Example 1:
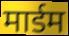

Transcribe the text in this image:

मार्डम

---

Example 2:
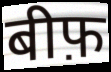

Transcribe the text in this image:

बीफ़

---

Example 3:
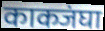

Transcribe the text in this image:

काकजंघा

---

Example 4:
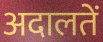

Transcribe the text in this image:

अदालतें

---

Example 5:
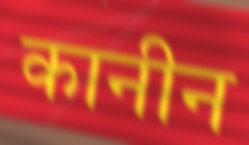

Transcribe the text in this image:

कानीन